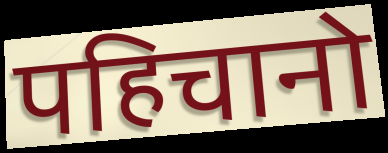
पहिचानो